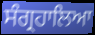
ਸੰਗ੍ਰਹਾਲਿਆ